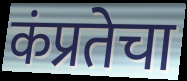
कंप्रतेचा